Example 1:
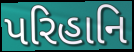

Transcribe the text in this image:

પરિહાનિ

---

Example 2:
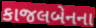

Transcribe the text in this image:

કાજલબેનના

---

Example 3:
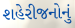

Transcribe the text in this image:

શહેરીજનોનું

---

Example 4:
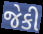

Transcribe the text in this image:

જેકી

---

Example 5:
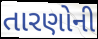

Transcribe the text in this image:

તારણોની